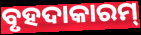
ବୃହଦାକାରମ୍